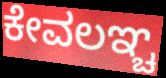
ಕೇವಲಞ್ಚ